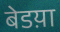
बेडय़ा